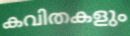
കവിതകളും